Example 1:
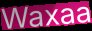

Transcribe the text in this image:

Waxaa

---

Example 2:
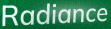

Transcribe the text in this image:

Radiance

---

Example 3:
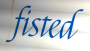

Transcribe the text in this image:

fisted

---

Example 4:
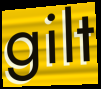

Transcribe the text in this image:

gilt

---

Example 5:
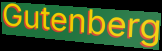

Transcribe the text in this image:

Gutenberg